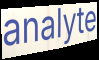
analyte